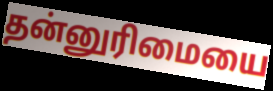
தன்னுரிமையை